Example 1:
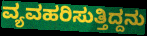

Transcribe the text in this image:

ವ್ಯವಹರಿಸುತ್ತಿದ್ದನು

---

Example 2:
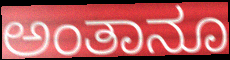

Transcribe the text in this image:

ಅಂತಾನೂ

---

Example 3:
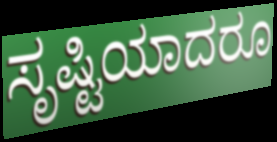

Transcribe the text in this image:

ಸೃಷ್ಟಿಯಾದರೂ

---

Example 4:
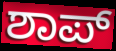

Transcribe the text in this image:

ಶಾಪ್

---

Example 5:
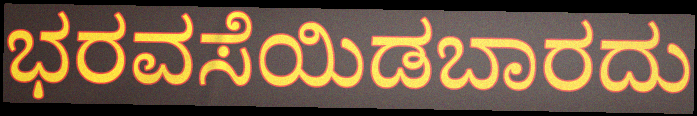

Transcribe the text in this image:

ಭರವಸೆಯಿಡಬಾರದು